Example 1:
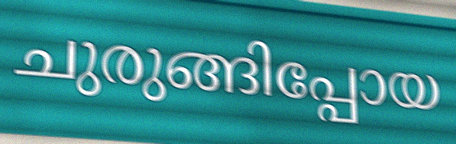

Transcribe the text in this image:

ചുരുങ്ങിപ്പോയ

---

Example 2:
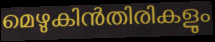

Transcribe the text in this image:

മെഴുകിൻതിരികളും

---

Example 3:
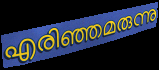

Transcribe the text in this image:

എരിഞ്ഞമരുന്നു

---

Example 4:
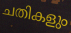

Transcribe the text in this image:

ചതികളും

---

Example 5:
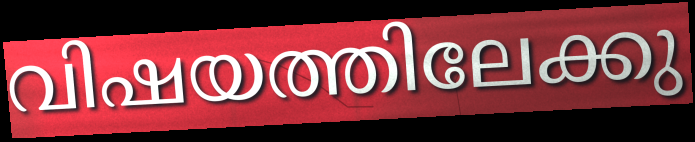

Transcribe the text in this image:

വിഷയത്തിലേക്കു